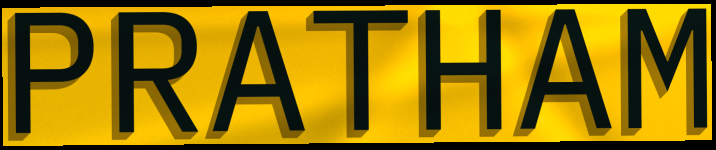
PRATHAM